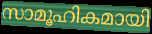
സാമൂഹികമായി